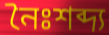
নৈঃশব্দ্য